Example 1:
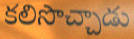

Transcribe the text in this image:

కలిసొచ్చాడు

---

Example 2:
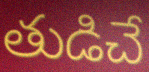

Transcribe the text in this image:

తుడిచే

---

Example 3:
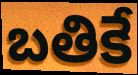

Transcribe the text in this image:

బతికే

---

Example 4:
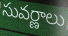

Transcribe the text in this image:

సువర్ణాలు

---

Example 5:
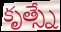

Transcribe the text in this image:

కృత్స్నే